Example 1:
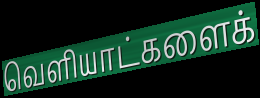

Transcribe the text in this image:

வெளியாட்களைக்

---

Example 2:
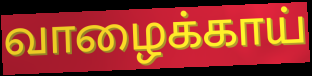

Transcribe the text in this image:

வாழைக்காய்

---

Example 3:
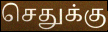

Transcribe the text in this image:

செதுக்கு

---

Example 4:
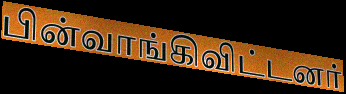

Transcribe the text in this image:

பின்வாங்கிவிட்டனர்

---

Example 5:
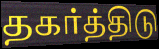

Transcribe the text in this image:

தகர்த்திடு